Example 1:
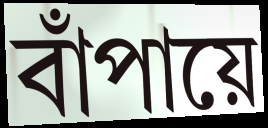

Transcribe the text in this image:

বাঁপায়ে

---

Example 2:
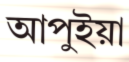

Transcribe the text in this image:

আপুইয়া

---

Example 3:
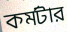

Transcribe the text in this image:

কর্মটার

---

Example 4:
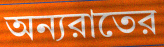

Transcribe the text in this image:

অন্যরাতের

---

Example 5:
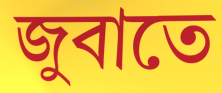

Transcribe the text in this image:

জুবাতে